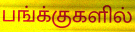
பங்க்குகளில்